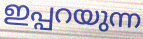
ഇപ്പറയുന്ന